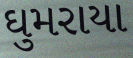
ઘુમરાયા